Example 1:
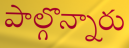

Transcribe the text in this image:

పాల్గొన్నారు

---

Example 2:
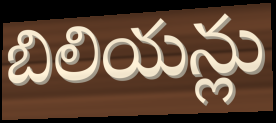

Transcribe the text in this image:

బిలియన్లు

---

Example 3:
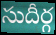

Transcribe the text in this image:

సుదీర్గ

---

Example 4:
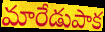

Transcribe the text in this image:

మారేడుపాక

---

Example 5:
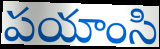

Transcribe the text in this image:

పయాంసి